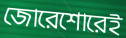
জোরেশোরেই